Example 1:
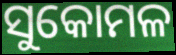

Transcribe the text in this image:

ସୁକୋମଳ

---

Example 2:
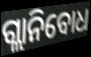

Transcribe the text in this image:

ଗ୍ଲାନିବୋଧ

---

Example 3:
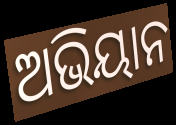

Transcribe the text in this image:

ଅଭିୟାନ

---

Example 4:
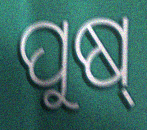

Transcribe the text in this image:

ପୁଷ୍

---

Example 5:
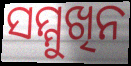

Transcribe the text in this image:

ସମ୍ମୁଖିନ